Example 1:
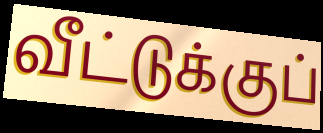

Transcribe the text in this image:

வீட்டுக்குப்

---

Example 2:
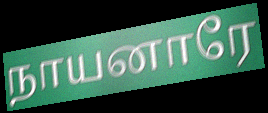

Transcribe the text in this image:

நாயனாரே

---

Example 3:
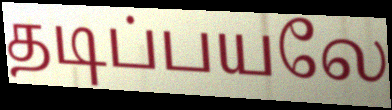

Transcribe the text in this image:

தடிப்பயலே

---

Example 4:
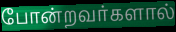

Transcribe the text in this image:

போன்றவர்களால்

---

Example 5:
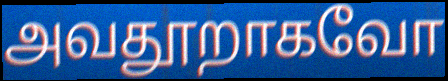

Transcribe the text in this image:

அவதூறாகவோ